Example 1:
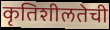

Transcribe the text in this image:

कृतिशीलतेची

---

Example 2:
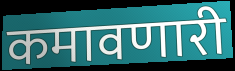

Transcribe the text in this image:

कमावणारी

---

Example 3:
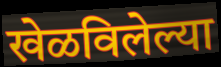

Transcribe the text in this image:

खेळविलेल्या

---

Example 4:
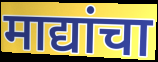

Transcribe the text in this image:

माद्यांचा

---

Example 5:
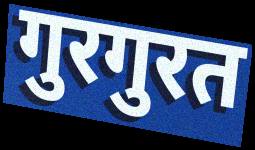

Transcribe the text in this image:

गुरगुरत